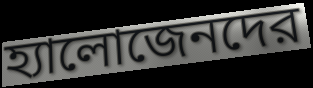
হ্যালোজেনদের